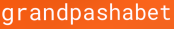
grandpashabet